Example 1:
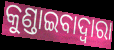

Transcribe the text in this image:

କୁଣ୍ଡାଇବାଦ୍ୱାରା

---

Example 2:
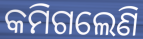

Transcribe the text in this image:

କମିଗଲେଣି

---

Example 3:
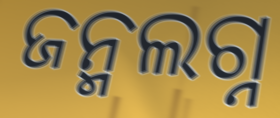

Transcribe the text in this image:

ଜନ୍ମଲଗ୍ନ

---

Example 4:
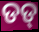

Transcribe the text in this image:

ଡଡ୍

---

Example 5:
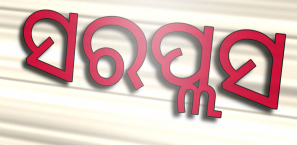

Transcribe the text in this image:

ସରପ୍ଲସ